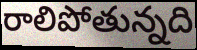
రాలిపోతున్నది